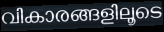
വികാരങ്ങളിലൂടെ